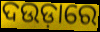
ଦଉଡ଼ାରେ